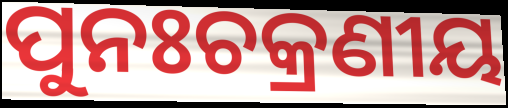
ପୁନଃଚକ୍ରଣୀୟ